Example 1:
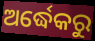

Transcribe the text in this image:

ଅର୍ଦ୍ଧେକରୁ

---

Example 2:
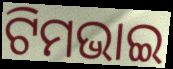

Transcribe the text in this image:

ଟିମଭାଇ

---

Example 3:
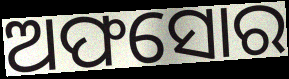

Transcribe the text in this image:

ଅଫସୋର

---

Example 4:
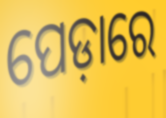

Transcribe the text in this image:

ପେଡ଼ାରେ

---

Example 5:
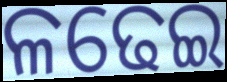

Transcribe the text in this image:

ଳଢେଇ